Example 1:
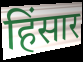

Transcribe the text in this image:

हिंसार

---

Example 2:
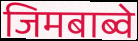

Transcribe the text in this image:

जिमबाब्वे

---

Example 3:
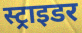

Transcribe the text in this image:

स्ट्राइडर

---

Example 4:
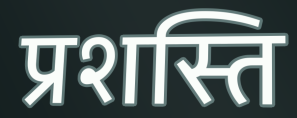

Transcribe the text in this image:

प्रशस्ति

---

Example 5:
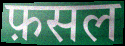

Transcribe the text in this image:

फ़सल